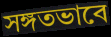
সঙ্গতভাবে